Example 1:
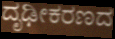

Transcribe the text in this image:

ದೃಢೀಕರಣದ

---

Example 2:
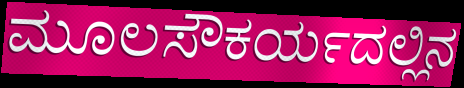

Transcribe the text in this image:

ಮೂಲಸೌಕರ್ಯದಲ್ಲಿನ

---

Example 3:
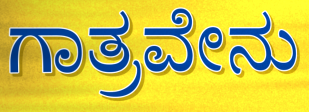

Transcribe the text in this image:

ಗಾತ್ರವೇನು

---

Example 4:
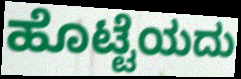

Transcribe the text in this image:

ಹೊಟ್ಟೆಯದು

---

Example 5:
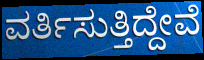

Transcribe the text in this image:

ವರ್ತಿಸುತ್ತಿದ್ದೇವೆ